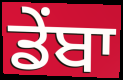
ਡੇਂਬਾ